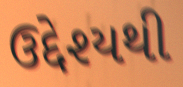
ઉદ્દેશ્યથી